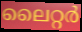
ലൈറ്റർ